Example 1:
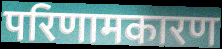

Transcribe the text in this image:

परिणामकारण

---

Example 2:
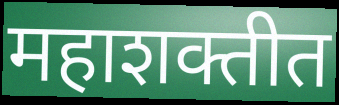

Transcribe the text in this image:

महाशक्तीत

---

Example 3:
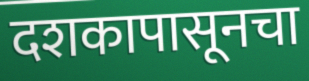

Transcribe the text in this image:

दशकापासूनचा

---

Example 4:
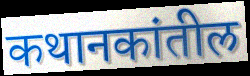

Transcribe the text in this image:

कथानकांतील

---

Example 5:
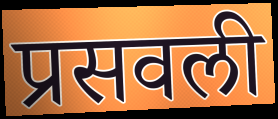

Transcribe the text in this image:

प्रसवली